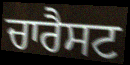
ਚਾਰੈਸਟ